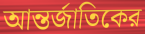
আন্তর্জাতিকের